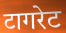
टागरेट